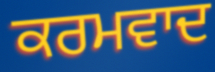
ਕਰਮਵਾਦ